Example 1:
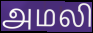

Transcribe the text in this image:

அமலி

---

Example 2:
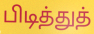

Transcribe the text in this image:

பிடித்துத்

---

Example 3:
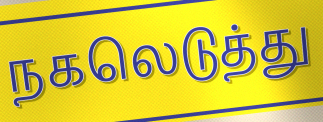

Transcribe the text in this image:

நகலெடுத்து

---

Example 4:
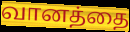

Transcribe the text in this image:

வானத்தை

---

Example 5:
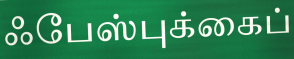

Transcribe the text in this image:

ஃபேஸ்புக்கைப்